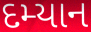
દમ્યાન